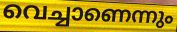
വെച്ചാണെന്നും